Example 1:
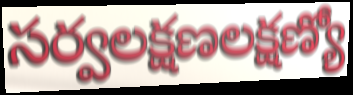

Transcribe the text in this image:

సర్వలక్షణలక్షణ్యో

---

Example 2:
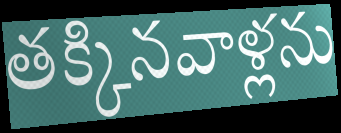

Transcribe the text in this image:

తక్కినవాళ్లను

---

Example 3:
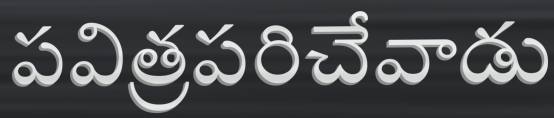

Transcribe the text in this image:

పవిత్రపరిచేవాడు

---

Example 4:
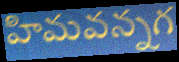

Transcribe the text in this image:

హిమవన్నగ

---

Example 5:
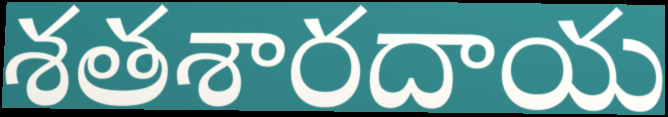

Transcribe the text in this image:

శతశారదాయ